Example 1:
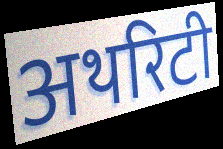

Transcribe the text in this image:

अथरिटी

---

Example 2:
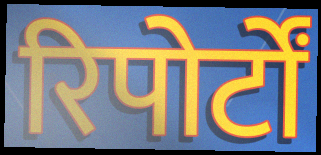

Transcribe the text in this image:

रिपोर्टों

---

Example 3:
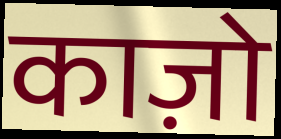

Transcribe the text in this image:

काज़ो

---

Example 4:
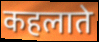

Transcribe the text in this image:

कहलाते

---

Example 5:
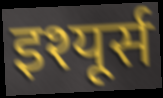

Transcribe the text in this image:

इश्यूर्स